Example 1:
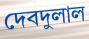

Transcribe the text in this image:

দেবদুলাল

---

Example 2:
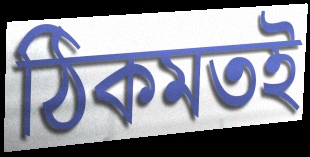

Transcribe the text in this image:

ঠিকমতই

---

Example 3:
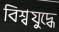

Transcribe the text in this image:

বিশ্বযুদ্ধে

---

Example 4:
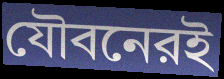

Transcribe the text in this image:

যৌবনেরই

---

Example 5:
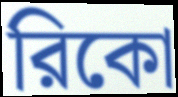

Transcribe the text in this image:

রিকো